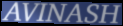
AVINASH